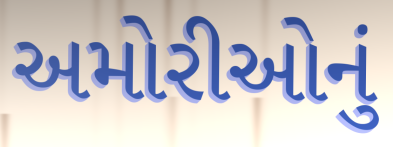
અમોરીઓનું